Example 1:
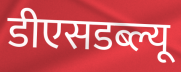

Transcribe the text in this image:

डीएसडब्ल्यू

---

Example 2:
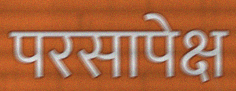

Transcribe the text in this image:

परसापेक्ष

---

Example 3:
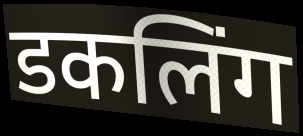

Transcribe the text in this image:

डकलिंग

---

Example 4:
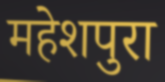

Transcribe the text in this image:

महेशपुरा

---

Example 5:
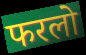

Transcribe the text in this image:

फरलो